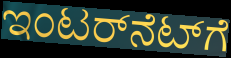
ಇಂಟರ್‌ನೆಟ್‌ಗೆ